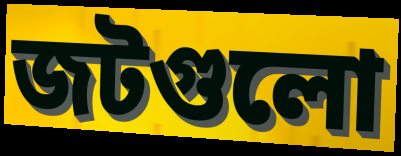
জটগুলো